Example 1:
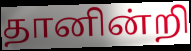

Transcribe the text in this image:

தானின்றி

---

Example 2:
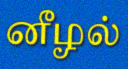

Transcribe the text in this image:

னீழல்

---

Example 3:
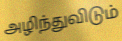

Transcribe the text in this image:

அழிந்துவிடும்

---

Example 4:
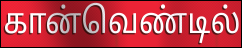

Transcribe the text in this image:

கான்வெண்டில்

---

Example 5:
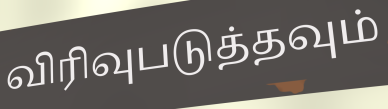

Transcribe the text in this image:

விரிவுபடுத்தவும்